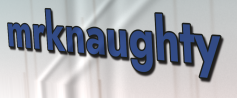
mrknaughty